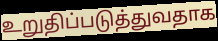
உறுதிப்படுத்துவதாக